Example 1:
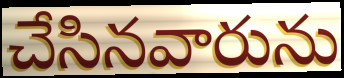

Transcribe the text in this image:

చేసినవారును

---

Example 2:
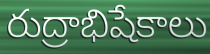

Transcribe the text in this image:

రుద్రాభిషేకాలు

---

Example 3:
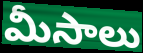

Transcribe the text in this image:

మీసాలు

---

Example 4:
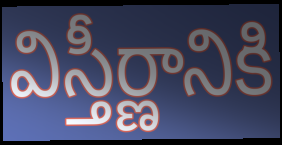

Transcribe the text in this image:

విస్తీర్ణానికి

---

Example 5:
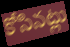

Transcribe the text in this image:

కోసినట్లు